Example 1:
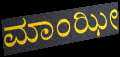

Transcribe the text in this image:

ಮಾಂಝೀ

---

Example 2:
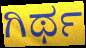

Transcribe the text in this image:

ಗಿರ್ಥ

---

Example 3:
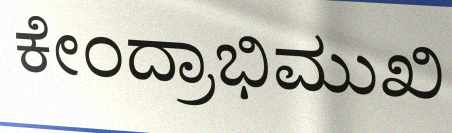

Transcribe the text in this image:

ಕೇಂದ್ರಾಭಿಮುಖಿ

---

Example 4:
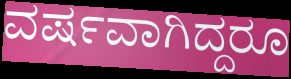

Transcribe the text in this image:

ವರ್ಷವಾಗಿದ್ದರೂ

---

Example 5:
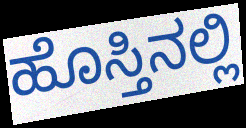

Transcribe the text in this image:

ಹೊಸ್ತಿನಲ್ಲಿ